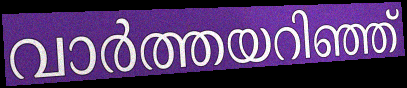
വാർത്തയറിഞ്ഞ്